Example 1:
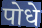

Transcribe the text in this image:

पोधे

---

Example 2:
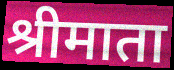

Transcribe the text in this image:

श्रीमाता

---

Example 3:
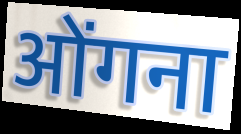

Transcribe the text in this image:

ओंगना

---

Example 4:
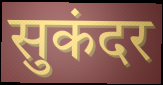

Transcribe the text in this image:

सुकंदर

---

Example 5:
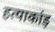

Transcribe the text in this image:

हत्याकांड़